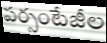
పర్సంటేజీల